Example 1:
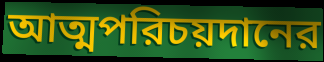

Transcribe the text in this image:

আত্মপরিচয়দানের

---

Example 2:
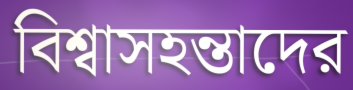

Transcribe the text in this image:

বিশ্বাসহন্তাদের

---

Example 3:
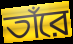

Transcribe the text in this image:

তাঁরে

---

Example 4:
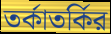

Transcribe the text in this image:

তর্কাতর্কির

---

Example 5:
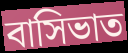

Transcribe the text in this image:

বাসিভাত